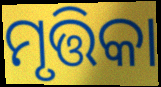
ମୃତ୍ତିକା